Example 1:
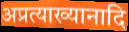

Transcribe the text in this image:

अप्रत्याख्यानादि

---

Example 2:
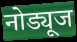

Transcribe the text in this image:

नोड्यूज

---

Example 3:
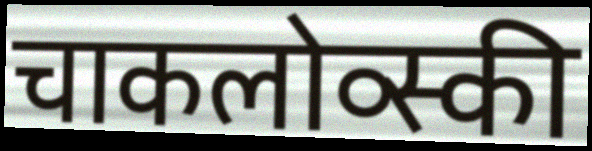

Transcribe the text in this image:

चाकलोव्स्की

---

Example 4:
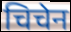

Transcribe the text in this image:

चिचेन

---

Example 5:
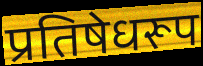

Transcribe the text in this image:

प्रतिषेधरूप